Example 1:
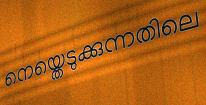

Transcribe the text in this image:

നെയ്തെടുക്കുന്നതിലെ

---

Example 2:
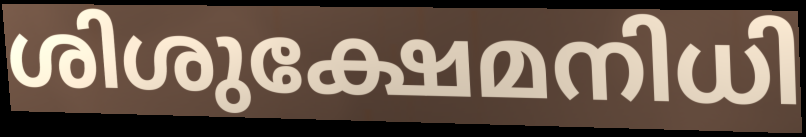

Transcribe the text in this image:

ശിശുക്ഷേമനിധി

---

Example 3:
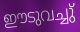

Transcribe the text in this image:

ഈടുവച്ചു്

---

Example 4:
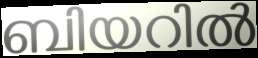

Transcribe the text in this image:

ബിയറിൽ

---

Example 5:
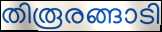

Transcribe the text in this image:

തിരൂരങ്ങാടി